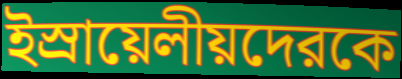
ইস্রায়েলীয়দেরকে